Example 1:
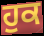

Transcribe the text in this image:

ਹੁਕ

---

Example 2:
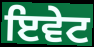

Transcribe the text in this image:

ਇਵੇਟ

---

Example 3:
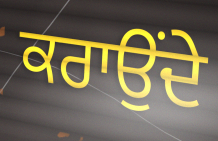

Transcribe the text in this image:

ਕਰਾਉਂਦੇ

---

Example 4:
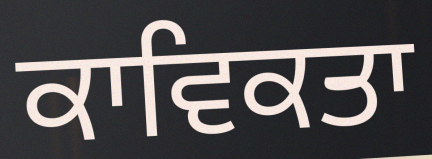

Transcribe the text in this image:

ਕਾਵਿਕਤਾ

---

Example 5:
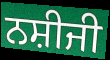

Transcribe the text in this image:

ਨਸ਼ੀਜੀ